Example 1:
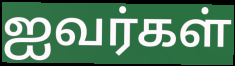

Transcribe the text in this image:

ஐவர்கள்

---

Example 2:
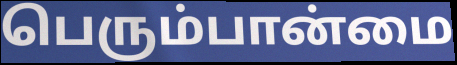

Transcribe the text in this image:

பெரும்பான்மை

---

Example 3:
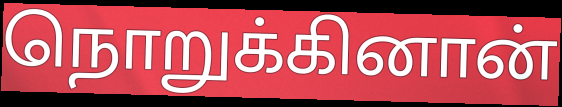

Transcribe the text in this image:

நொறுக்கினான்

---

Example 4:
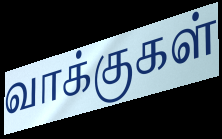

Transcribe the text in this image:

வாக்குகள்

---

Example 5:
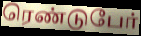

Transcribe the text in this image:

ரெண்டுபேர்